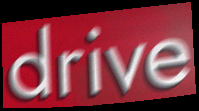
drive